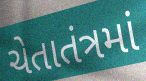
ચેતાતંત્રમાં